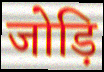
जोड़ि